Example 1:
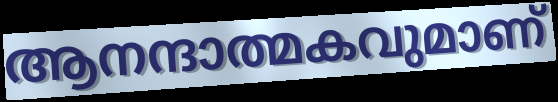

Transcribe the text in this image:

ആനന്ദാത്മകവുമാണ്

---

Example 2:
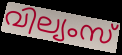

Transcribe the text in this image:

വില്യംസ്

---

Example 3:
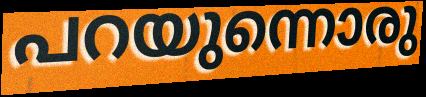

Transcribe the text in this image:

പറയുന്നൊരു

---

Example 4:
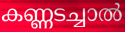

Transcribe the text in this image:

കണ്ണടച്ചാൽ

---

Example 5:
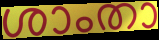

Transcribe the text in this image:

ശാംതാ